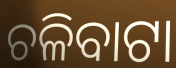
ଚଳିବାଟା